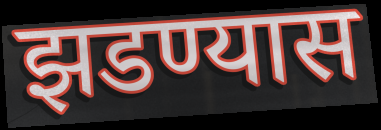
झडण्यास